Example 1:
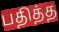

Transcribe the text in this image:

பதித்த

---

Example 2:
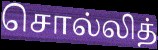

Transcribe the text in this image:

சொல்லித்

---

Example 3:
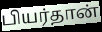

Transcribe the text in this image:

பியர்தான்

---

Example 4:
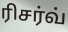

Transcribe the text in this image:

ரிசர்வ்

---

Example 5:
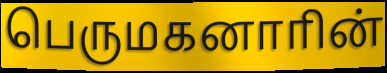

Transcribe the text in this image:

பெருமகனாரின்